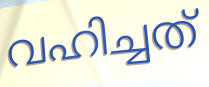
വഹിച്ചത്